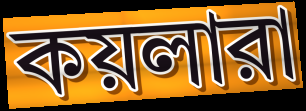
কয়লারা